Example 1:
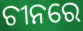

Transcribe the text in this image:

ଚୀନରେ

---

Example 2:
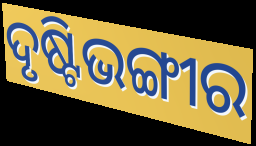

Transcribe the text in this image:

ଦୃଷ୍ଟିଭଙ୍ଗୀର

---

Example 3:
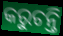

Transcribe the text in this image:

କରୁଚନ୍ତି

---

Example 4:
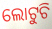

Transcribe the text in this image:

ଲୋଟୁଚି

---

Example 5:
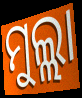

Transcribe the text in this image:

ମୁଲ୍ଲା